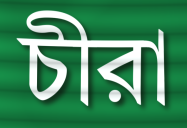
চীরা